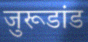
जुरूडांड